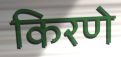
किरणे